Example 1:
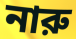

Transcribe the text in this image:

নারু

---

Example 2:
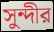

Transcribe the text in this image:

সুন্দীর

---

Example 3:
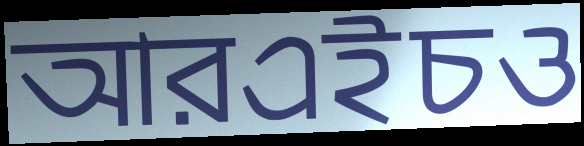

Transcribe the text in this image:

আরএইচও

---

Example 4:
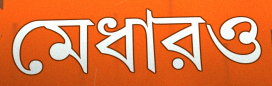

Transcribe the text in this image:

মেধারও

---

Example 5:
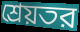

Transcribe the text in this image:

শ্রেয়তর